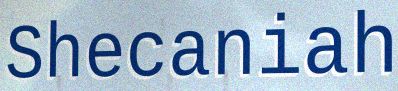
Shecaniah